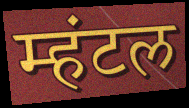
म्हंटल